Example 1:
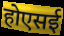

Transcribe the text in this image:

होएसई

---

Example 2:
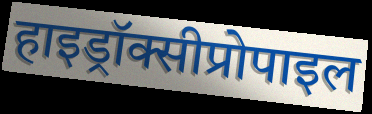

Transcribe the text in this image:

हाइड्रॉक्सीप्रोपाइल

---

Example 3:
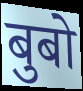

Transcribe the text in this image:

बुबो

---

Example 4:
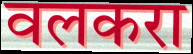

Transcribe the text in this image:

वलकरा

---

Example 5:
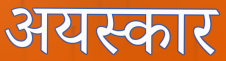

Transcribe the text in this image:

अयस्कार